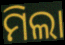
ମିଲା